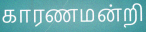
காரணமன்றி